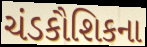
ચંડકૌશિકના